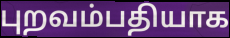
புறவம்பதியாக